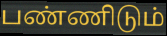
பண்ணிடும்